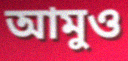
আমুও